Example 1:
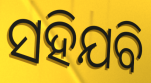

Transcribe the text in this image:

ସହିଯବି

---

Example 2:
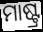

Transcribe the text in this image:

ମାଷ୍ଟ୍ର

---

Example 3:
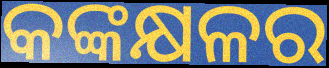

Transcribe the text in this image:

କଙ୍କକ୍ଷଳର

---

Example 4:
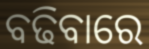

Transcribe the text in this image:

ବଢିବାରେ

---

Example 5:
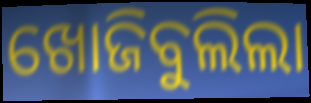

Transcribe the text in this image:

ଖୋଜିବୁଲିଲା